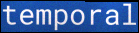
temporal